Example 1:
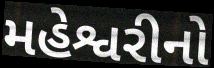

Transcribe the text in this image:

મહેશ્વરીનો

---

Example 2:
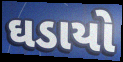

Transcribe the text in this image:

ઘડાયો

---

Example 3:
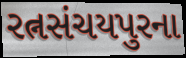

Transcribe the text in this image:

રત્નસંચયપુરના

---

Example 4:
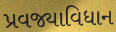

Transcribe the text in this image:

પ્રવજ્યાવિધાન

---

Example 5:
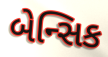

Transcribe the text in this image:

બેન્સિક